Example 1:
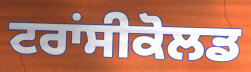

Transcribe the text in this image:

ਟਰਾਂਸੀਕੋਲਡ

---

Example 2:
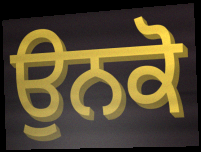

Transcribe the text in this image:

ਉਨਕੋ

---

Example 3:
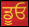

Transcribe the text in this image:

ਡੂਓ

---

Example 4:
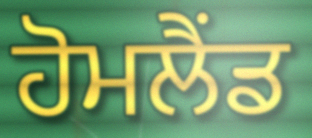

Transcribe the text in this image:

ਹੋਮਲੈਂਡ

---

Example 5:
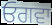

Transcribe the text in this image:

ਓਗਵਾ